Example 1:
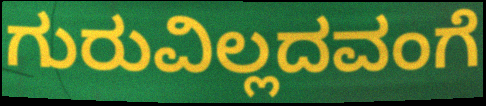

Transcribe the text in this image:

ಗುರುವಿಲ್ಲದವಂಗೆ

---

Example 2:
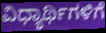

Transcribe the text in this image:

ವಿಧ್ಯಾರ್ಥಿಗಳಿಗೆ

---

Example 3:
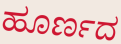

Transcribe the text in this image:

ಹೂರ್ಣದ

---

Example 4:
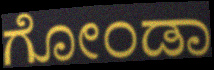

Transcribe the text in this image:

ಗೋಂಡಾ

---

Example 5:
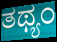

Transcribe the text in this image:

ತಥ್ಯಂ